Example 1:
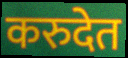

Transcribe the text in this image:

करुदेत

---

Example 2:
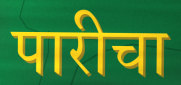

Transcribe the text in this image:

पारीचा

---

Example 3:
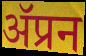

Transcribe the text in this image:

ॲप्रन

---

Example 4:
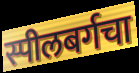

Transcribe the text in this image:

स्पीलबर्गचा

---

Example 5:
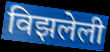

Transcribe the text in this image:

विझलेली